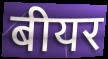
बीयर